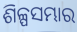
ଶିଳ୍ପସମ୍ଭାର